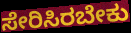
ಸೇರಿಸಿರಬೇಕು